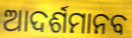
ଆଦର୍ଶମାନବ